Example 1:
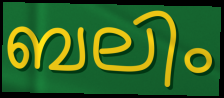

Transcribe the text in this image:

ബലിം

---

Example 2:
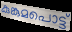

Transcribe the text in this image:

കുങ്കുമപൊട്ട്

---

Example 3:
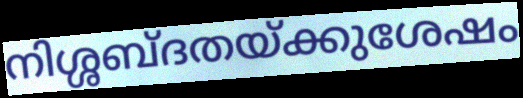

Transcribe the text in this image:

നിശ്ശബ്ദതയ്ക്കുശേഷം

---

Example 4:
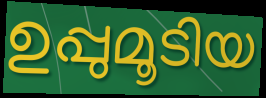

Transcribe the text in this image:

ഉപ്പുമൂടിയ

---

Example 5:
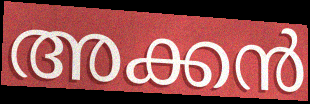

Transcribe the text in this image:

അക്കൻ